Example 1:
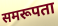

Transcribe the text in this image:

समरूपता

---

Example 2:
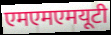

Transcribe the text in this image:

एमएमएमयूटी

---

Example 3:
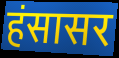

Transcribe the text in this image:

हंसासर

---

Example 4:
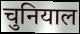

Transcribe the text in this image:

चुनियाल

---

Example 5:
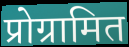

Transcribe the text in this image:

प्रोग्रामित